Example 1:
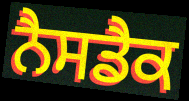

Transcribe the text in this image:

ਨੈਸਡੈਕ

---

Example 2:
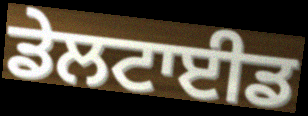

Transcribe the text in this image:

ਡੇਲਟਾਈਡ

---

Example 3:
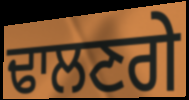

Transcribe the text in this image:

ਢਾਲਣਗੇ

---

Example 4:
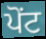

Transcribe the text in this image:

ਪੋਂਟ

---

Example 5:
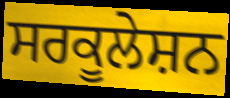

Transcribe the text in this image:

ਸਰਕੂਲੇਸ਼ਨ